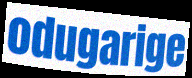
odugarige